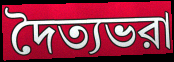
দৈত্যভরা